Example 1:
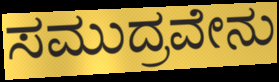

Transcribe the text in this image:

ಸಮುದ್ರವೇನು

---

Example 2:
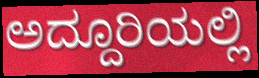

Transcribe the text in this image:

ಅದ್ದೂರಿಯಲ್ಲಿ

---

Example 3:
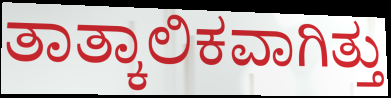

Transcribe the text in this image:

ತಾತ್ಕಾಲಿಕವಾಗಿತ್ತು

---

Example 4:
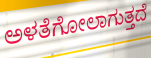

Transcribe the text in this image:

ಅಳತೆಗೋಲಾಗುತ್ತದೆ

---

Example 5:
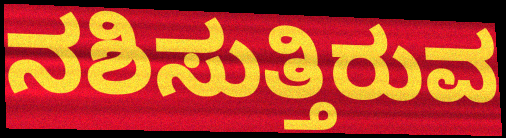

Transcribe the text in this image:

ನಶಿಸುತ್ತಿರುವ